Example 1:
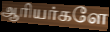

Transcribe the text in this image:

ஆரியர்களே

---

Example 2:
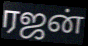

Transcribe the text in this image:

ரஜன்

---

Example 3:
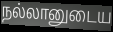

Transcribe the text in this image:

நல்லானுடைய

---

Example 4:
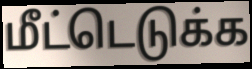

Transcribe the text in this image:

மீட்டெடுக்க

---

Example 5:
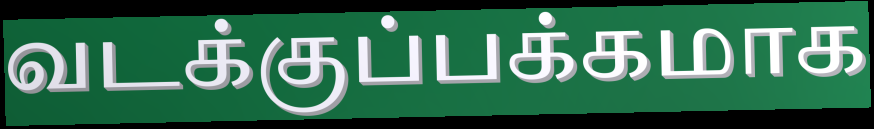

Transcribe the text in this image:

வடக்குப்பக்கமாக